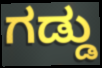
ಗಡ್ಡು